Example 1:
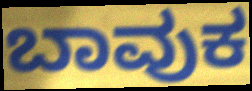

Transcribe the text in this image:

ಬಾವುಕ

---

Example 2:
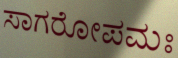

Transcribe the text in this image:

ಸಾಗರೋಪಮಃ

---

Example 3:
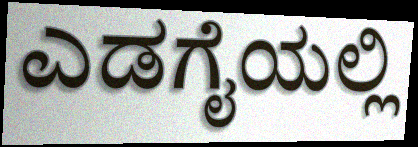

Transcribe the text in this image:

ಎಡಗೈಯಲ್ಲಿ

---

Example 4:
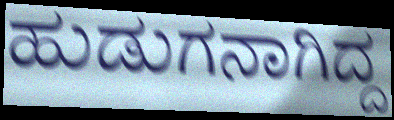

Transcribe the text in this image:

ಹುಡುಗನಾಗಿದ್ದ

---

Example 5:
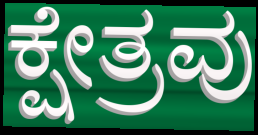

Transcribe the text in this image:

ಕ್ಷೇತ್ರವು